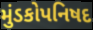
મુંડકોપનિષદ